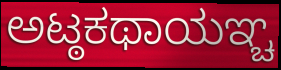
ಅಟ್ಠಕಥಾಯಞ್ಚ